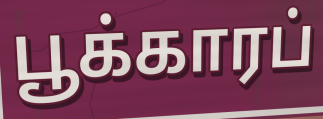
பூக்காரப்